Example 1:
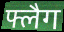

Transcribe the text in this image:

फ्लैग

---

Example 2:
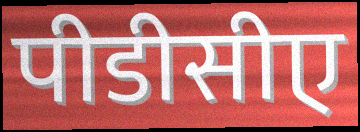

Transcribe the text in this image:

पीडीसीए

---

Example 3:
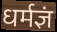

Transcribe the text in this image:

धर्मज्ञं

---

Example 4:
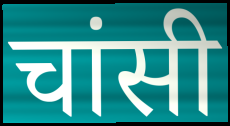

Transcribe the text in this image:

चांसी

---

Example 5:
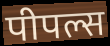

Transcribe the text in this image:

पीपल्स